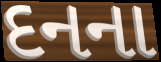
દનના